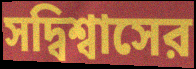
সদ্বিশ্বাসের